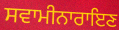
ਸਵਾਮੀਨਾਰਾਇਣ